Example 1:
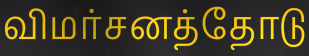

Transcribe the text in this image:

விமர்சனத்தோடு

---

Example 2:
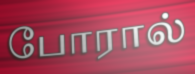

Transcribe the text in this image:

போரால்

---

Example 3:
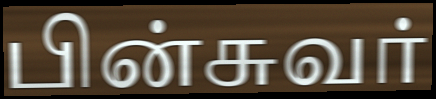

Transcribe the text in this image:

பின்சுவர்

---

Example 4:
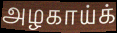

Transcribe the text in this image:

அழகாய்க்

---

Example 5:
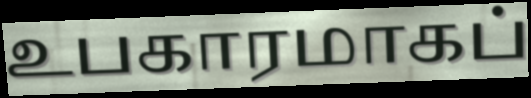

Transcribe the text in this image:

உபகாரமாகப்